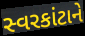
સ્વરકાંટાને